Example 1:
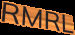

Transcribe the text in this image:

RMRL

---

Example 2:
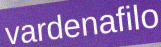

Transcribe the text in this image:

vardenafilo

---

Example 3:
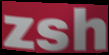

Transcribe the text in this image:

zsh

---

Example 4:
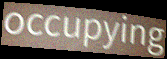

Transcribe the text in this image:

occupying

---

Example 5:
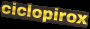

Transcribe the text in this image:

ciclopirox